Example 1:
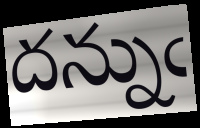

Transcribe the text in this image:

దన్నుఁ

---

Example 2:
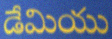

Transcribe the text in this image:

డేమియు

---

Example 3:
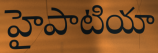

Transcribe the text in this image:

హైపాటియా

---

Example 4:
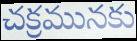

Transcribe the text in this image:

చక్రమునకు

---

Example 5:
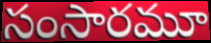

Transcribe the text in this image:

సంసారమూ